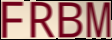
FRBM